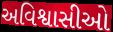
અવિશ્વાસીઓ